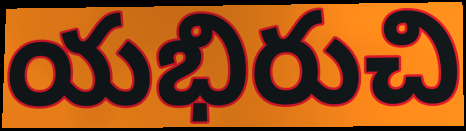
యభిరుచి